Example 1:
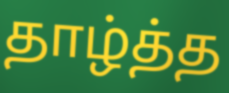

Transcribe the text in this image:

தாழ்த்த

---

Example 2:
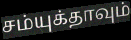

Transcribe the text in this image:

சம்யுக்தாவும்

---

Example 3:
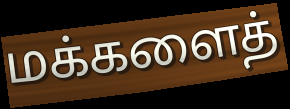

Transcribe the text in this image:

மக்களைத்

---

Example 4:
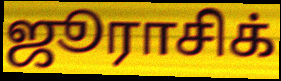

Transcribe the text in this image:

ஜூராசிக்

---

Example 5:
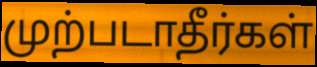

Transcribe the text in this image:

முற்படாதீர்கள்